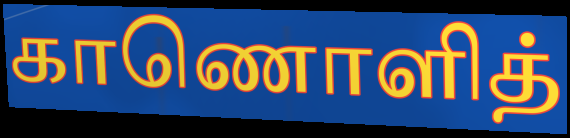
காணொளித்